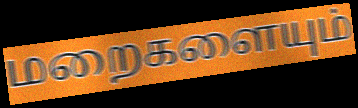
மறைகளையும்